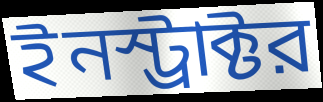
ইনস্ট্রাক্টর